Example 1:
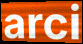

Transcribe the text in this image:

arci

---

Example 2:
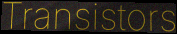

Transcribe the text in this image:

Transistors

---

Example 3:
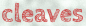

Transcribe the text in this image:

cleaves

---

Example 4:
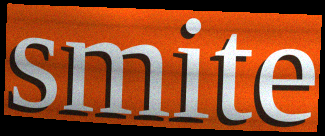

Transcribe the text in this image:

smite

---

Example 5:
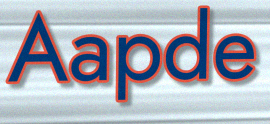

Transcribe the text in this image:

Aapde